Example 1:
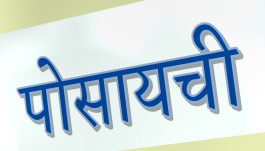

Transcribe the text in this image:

पोसायची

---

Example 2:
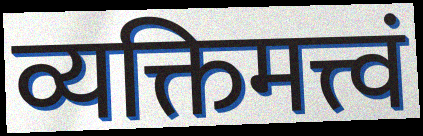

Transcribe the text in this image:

व्यक्तिमत्त्वं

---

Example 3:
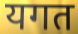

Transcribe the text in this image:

यगत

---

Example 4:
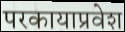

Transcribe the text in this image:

परकायाप्रवेश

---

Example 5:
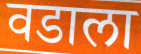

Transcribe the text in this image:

वडाला